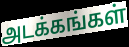
அடக்கங்கள்